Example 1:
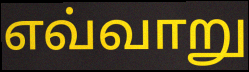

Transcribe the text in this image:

எவ்வாறு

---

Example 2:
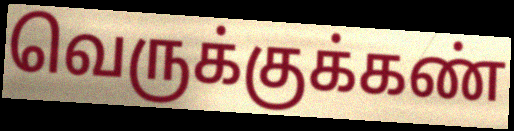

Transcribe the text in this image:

வெருக்குக்கண்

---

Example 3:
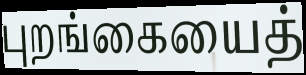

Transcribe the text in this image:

புறங்கையைத்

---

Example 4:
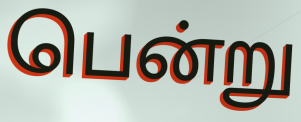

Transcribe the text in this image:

பென்று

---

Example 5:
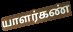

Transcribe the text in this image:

யாளர்கண்